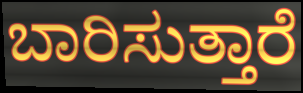
ಬಾರಿಸುತ್ತಾರೆ